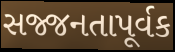
સજ્જનતાપૂર્વક